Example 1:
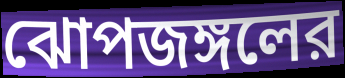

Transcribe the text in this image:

ঝোপজঙ্গলের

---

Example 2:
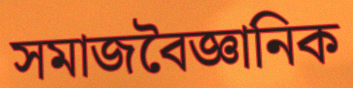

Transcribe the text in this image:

সমাজবৈজ্ঞানিক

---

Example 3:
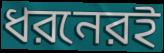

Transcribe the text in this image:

ধরনেরই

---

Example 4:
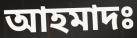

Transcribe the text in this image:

আহমাদঃ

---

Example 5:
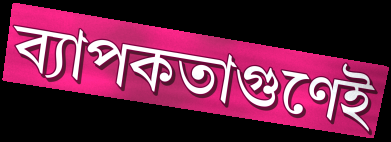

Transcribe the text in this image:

ব্যাপকতাগুণেই